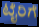
ಟೈರಿಗೆ